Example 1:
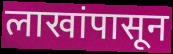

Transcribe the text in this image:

लाखांपासून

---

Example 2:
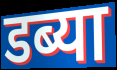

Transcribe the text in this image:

डब्या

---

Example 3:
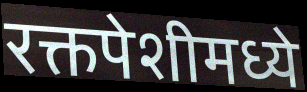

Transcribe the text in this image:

रक्तपेशीमध्ये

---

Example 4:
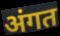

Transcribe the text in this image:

अंगत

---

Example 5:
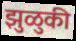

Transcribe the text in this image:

झुळुकी